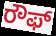
ರೌಫ್